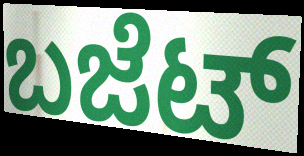
ಬಜೆಟ್